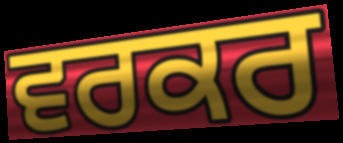
ਵਰਕਰ